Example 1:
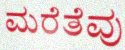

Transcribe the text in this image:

ಮರೆತೆವು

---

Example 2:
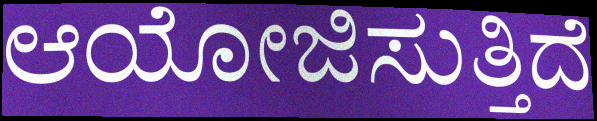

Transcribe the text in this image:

ಆಯೋಜಿಸುತ್ತಿದೆ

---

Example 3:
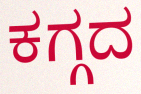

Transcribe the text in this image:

ಕಗ್ಗದ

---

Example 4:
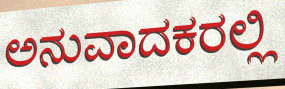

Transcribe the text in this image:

ಅನುವಾದಕರಲ್ಲಿ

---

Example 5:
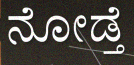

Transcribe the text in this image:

ನೋಡ್ತೆ